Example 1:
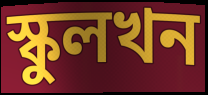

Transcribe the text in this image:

স্কুলখন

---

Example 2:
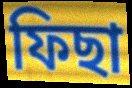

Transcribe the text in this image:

ফিছা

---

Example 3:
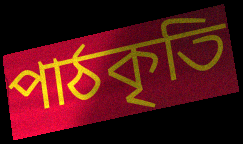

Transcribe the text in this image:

পাঠকৃতি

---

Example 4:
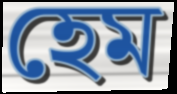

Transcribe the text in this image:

হেম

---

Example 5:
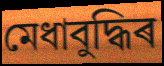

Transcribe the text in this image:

মেধাবুদ্ধিৰ